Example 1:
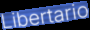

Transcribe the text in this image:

Libertario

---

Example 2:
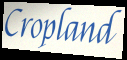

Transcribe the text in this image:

Cropland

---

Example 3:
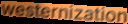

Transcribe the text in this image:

westernization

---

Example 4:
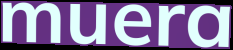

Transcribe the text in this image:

muera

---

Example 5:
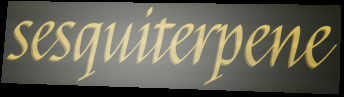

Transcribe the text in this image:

sesquiterpene